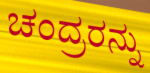
ಚಂದ್ರರನ್ನು